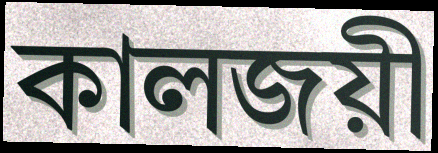
কালজয়ী